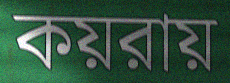
কয়রায়